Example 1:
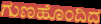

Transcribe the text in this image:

ಗುಣಹೊಂದಿದ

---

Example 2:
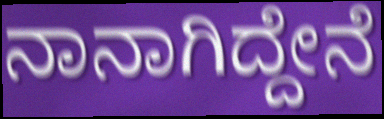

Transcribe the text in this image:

ನಾನಾಗಿದ್ದೇನೆ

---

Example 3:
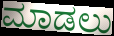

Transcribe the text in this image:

ಮಾಡಲು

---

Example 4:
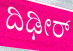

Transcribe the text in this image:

ದಿಢೀರ್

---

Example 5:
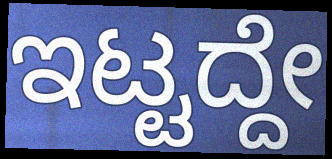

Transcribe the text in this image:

ಇಟ್ಟದ್ದೇ